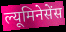
ल्यूमिनेसेंस